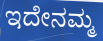
ಇದೇನಮ್ಮ